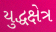
યુદ્ધક્ષેત્ર